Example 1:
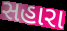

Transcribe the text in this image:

સહારા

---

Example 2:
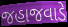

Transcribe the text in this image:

જહાજવાડે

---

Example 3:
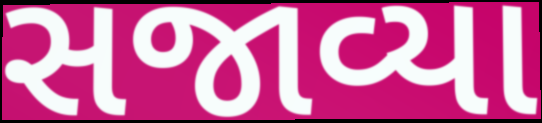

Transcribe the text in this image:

સજાવ્યા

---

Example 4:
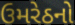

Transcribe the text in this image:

ઉમરેઠનો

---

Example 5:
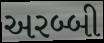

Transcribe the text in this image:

અરબ્બી